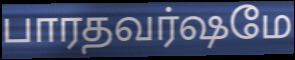
பாரதவர்ஷமே